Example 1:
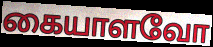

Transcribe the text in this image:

கையாளவோ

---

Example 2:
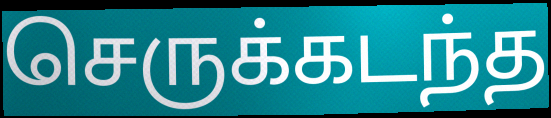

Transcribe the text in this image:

செருக்கடந்த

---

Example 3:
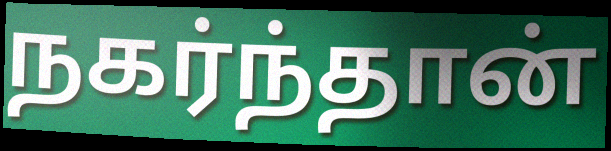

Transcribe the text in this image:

நகர்ந்தான்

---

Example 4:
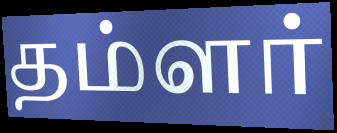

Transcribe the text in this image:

தம்ளர்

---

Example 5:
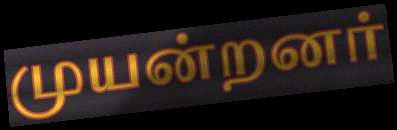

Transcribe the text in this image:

முயன்றனர்